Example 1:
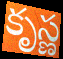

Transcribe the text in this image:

కృస్ణ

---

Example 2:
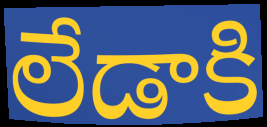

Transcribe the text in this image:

లేడాకి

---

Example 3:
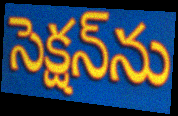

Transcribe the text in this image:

సెక్షన్‌ను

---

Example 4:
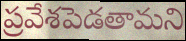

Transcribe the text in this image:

ప్రవేశపెడతామని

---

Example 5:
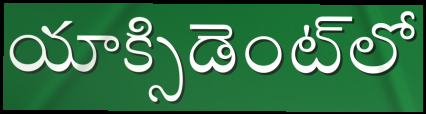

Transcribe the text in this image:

యాక్సిడెంట్‌లో